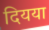
दियया